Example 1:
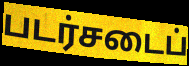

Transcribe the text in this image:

படர்சடைப்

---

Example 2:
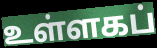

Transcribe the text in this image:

உள்ளகப்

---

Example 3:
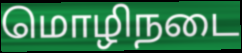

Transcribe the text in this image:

மொழிநடை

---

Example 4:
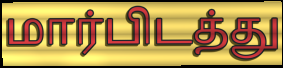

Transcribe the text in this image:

மார்பிடத்து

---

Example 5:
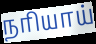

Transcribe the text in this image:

நரியாய்